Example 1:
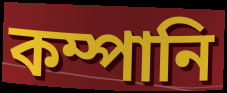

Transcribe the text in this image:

কম্পানি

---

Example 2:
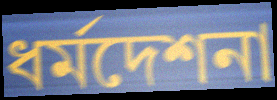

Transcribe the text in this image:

ধর্মদেশনা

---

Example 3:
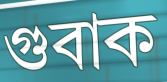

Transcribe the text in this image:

গুবাক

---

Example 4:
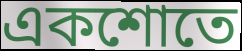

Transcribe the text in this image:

একশোতে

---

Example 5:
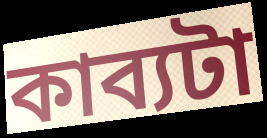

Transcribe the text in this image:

কাব্যটা